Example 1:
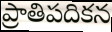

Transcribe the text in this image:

ప్రాతిపదికన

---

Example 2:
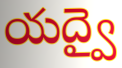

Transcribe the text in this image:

యద్వై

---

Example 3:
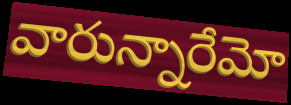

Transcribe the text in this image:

వారున్నారేమో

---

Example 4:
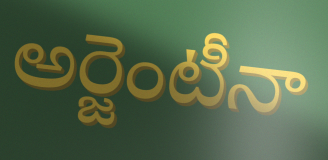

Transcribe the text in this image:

అర్జెంటీనా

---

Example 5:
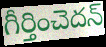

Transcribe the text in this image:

గీర్తించెదన్